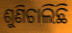
ଶୁଣିଚାଲିଛି